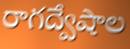
రాగద్వేషాల